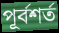
পূর্বশর্ত